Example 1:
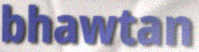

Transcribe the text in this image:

bhawtan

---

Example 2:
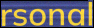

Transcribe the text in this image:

rsonal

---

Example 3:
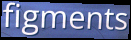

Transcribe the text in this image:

figments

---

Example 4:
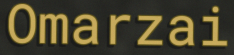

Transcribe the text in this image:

Omarzai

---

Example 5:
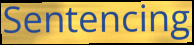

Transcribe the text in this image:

Sentencing